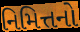
નિમિત્તનો